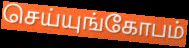
செய்யுங்கோபம்